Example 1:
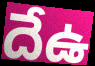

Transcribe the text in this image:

దేఉ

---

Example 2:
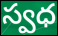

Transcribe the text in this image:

స్వధ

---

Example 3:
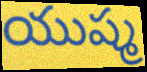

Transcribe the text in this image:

యుష్మ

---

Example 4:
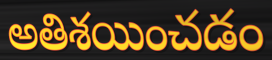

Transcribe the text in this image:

అతిశయించడం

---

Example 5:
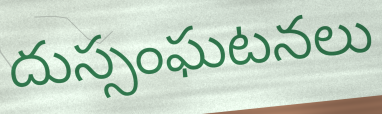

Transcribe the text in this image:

దుస్సంఘటనలు